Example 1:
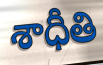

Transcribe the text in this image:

శాధీతి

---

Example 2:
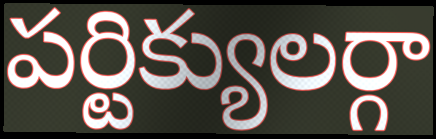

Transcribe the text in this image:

పర్టిక్యులర్గా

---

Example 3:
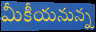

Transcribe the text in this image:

మీకీయనున్న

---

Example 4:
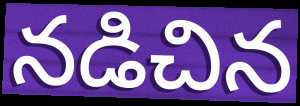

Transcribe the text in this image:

నడిచిన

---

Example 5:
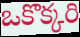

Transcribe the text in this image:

ఒకొక్కరి